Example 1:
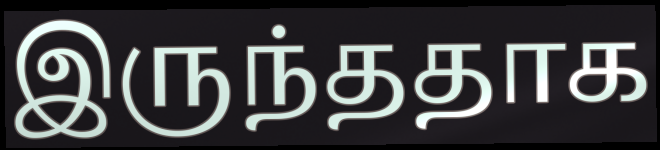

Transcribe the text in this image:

இருந்ததாக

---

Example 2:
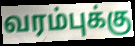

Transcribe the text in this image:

வரம்புக்கு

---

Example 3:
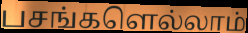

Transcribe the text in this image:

பசங்களெல்லாம்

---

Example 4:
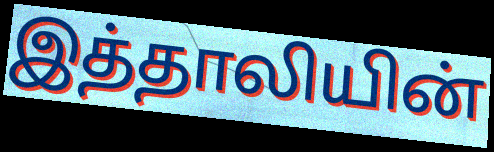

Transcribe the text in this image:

இத்தாலியின்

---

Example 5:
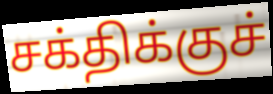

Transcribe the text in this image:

சக்திக்குச்